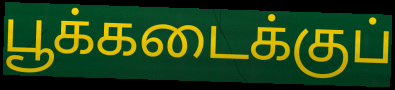
பூக்கடைக்குப்